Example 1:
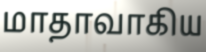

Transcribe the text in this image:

மாதாவாகிய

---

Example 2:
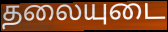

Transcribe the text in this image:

தலையுடை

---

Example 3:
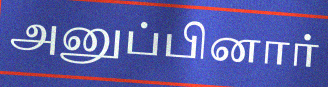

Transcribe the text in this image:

அனுப்பினார்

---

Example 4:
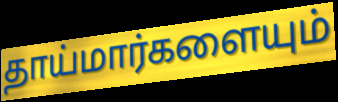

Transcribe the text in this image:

தாய்மார்களையும்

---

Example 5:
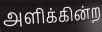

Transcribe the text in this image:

அளிக்கின்ற